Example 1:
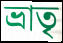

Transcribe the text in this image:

ভ্ৰাতৃ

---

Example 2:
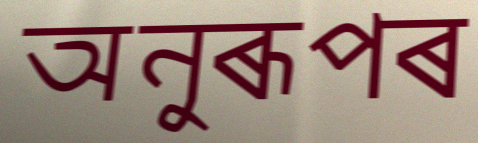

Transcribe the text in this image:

অনুৰূপৰ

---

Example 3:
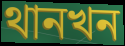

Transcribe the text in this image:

থানখন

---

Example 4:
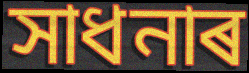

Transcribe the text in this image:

সাধনাৰ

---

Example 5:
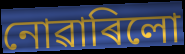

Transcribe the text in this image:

নোৱাৰিলো